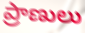
ప్రాణులు